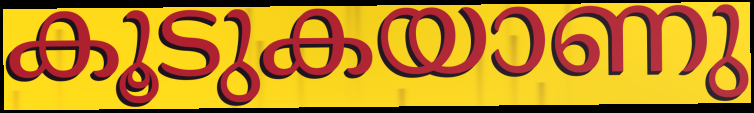
കൂടുകയാണു